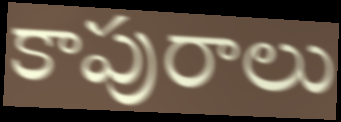
కాపురాలు